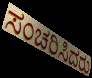
ಸಂಚರಿಸಿದರು